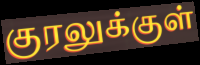
குரலுக்குள்